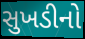
સુખડીનો